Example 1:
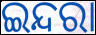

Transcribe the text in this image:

ଇନ୍ଦରା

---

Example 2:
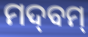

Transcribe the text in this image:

ମଦ୍‌ବମ୍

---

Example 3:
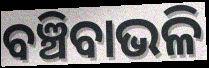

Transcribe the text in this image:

ବଞ୍ଚିବାଭଳି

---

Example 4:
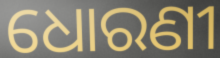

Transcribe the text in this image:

ଧୋରଣୀ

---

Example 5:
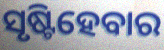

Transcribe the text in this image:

ସୃଷ୍ଟିହେବାର